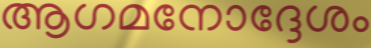
ആഗമനോദ്ദേശം